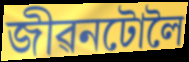
জীৱনটোলৈ